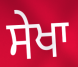
ਸੇਖਾ